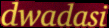
dwadasi